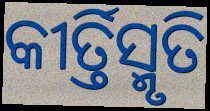
କୀର୍ତ୍ତିସ୍ମୃତି